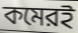
কমেরই